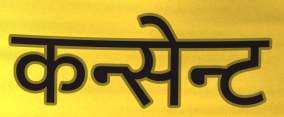
कन्सेन्ट